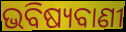
ଭବିଷ୍ୟବାଣୀ